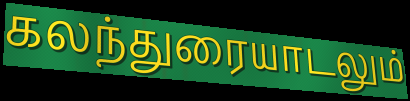
கலந்துரையாடலும்